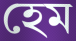
হেম